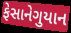
ફેસાનેગુયાન